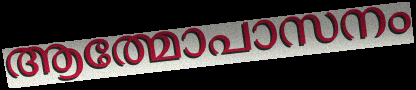
ആത്മോപാസനം